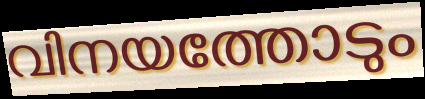
വിനയത്തോടും